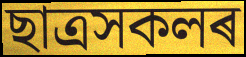
ছাত্ৰসকলৰ